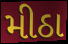
મીઠા